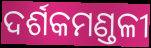
ଦର୍ଶକମଣ୍ଡଳୀ